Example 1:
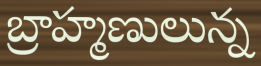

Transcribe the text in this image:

బ్రాహ్మణులున్న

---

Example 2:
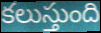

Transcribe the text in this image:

కలుస్తుంది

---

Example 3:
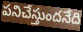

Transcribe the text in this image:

పనిచేస్తుందనేది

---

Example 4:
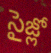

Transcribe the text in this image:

సైజ్లో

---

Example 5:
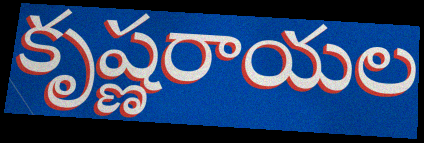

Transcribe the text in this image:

కృష్ణరాయల